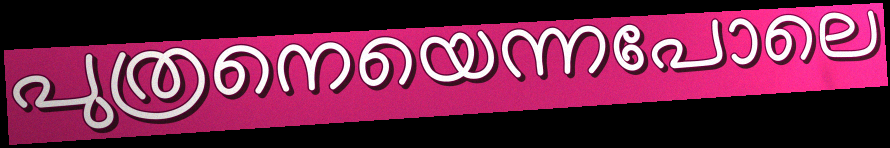
പുത്രനെയെന്നപോലെ